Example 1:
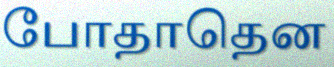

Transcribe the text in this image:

போதாதென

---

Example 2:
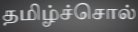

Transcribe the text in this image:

தமிழ்ச்சொல்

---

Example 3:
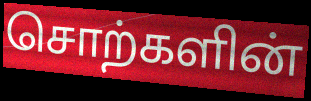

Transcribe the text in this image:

சொற்களின்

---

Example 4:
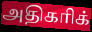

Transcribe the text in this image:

அதிகரிக்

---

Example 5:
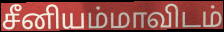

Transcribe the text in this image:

சீனியம்மாவிடம்